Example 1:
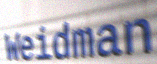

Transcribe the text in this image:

Weidman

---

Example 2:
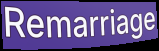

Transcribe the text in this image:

Remarriage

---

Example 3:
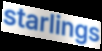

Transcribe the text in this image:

starlings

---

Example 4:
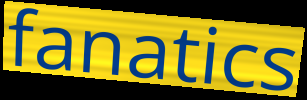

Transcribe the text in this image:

fanatics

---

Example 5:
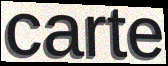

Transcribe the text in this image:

carte